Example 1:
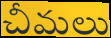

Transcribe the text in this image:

చీమలు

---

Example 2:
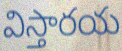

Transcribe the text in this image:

విస్తారయ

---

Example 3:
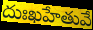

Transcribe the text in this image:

దుఃఖహేతువే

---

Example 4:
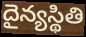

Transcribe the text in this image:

దైన్యస్థితి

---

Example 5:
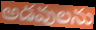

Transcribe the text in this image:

అడవులను